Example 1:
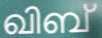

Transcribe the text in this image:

ഖിബ്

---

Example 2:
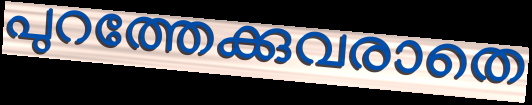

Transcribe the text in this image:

പുറത്തേക്കുവരാതെ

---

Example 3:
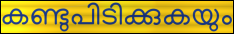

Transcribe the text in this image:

കണ്ടുപിടിക്കുകയും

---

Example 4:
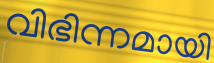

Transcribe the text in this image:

വിഭിന്നമായി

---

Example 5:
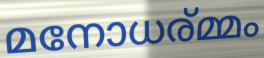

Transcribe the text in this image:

മനോധര്മ്മം